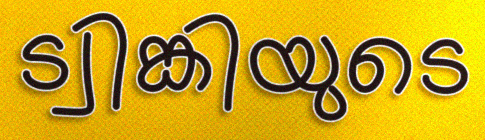
ട്വിങ്കിയുടെ